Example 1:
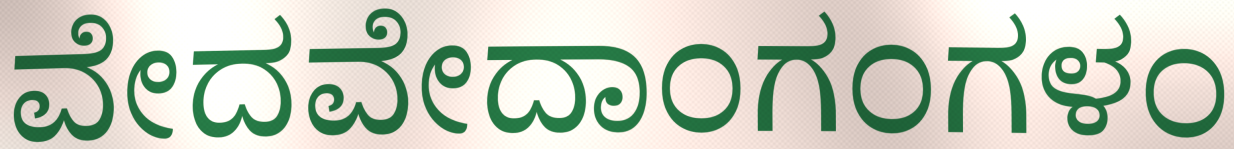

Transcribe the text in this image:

ವೇದವೇದಾಂಗಂಗಳಂ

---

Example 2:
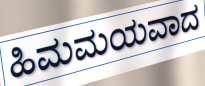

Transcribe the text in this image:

ಹಿಮಮಯವಾದ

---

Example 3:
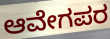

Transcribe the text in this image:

ಆವೇಗಪರ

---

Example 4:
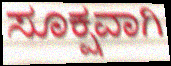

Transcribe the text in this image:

ಸೂಕ್ಷವಾಗಿ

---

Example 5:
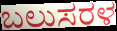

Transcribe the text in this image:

ಬಲುಸರಳ